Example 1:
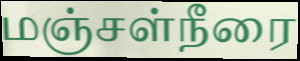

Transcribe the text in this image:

மஞ்சள்நீரை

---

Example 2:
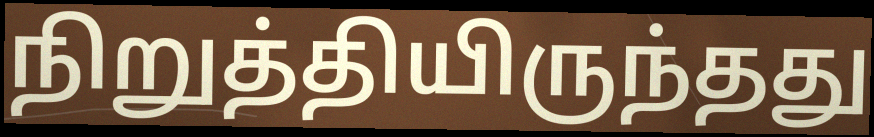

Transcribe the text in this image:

நிறுத்தியிருந்தது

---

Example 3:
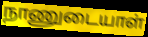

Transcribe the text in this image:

நாணுடையாள்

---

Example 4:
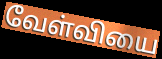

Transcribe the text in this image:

வேள்வியை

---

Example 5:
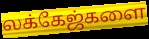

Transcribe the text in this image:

லக்கேஜ்களை